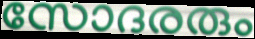
സോദരരും